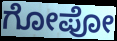
ಗೋಪೋ